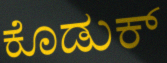
ಕೊಡುಕ್